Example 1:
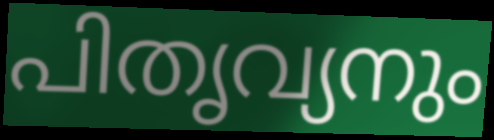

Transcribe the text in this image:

പിതൃവ്യനും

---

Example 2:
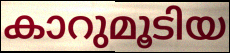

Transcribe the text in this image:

കാറുമൂടിയ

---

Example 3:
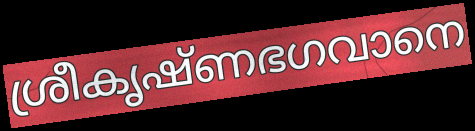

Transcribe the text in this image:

ശ്രീകൃഷ്ണഭഗവാനെ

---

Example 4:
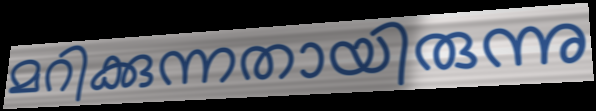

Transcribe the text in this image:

മറിക്കുന്നതായിരുന്നു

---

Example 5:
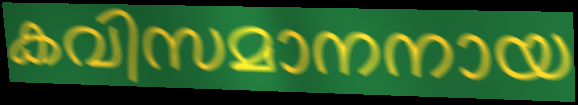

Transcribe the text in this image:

കവിസമാനനായ